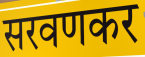
सरवणकर